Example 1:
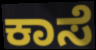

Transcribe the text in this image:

ಕಾಸೆ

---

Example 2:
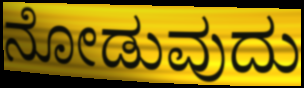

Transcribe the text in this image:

ನೋಡುವುದು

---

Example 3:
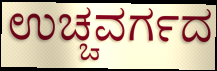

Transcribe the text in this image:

ಉಚ್ಚವರ್ಗದ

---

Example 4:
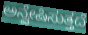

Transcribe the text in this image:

ಅನ್ವೇಷಿಸುತ್ತದೆ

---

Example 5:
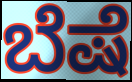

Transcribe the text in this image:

ಬೆಷೆ